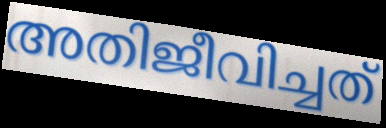
അതിജീവിച്ചത്